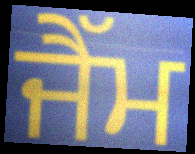
ਜੈੱਮ